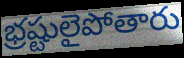
భ్రష్టులైపోతారు